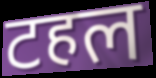
टहल